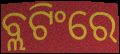
ବ୍ଲଟିଂରେ